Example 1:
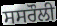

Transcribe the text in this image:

ਸਸਰੌਲੀ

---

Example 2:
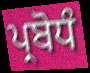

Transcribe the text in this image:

ਪ੍ਰਬੋਧੰ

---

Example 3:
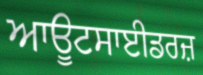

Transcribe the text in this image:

ਆਊਟਸਾਈਡਰਜ਼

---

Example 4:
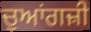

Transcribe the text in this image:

ਚੁਆਂਗਜ਼ੀ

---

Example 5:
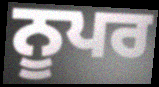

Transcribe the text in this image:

ਨੂਪਰ